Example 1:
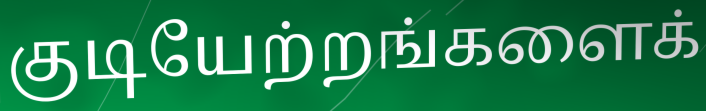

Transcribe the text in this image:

குடியேற்றங்களைக்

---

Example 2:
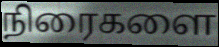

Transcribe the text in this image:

நிரைகளை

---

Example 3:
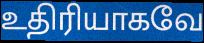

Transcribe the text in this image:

உதிரியாகவே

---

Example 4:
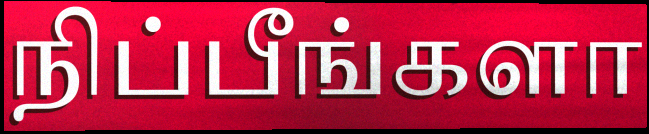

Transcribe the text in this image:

நிப்பீங்களா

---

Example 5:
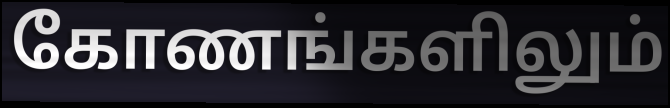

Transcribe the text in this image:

கோணங்களிலும்